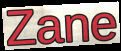
Zane